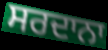
ਸਰਦਾਨਾ